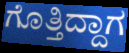
ಗೊತ್ತಿದ್ದಾಗ